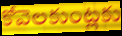
కోవెలకుంట్లకు